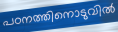
പഠനത്തിനൊടുവിൽ